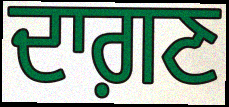
ਦਾਗ਼ਣ